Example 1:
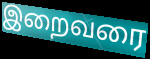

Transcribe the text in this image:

இறைவரை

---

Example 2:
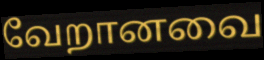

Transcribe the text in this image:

வேறானவை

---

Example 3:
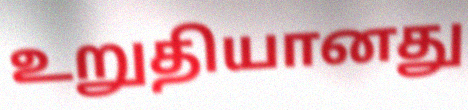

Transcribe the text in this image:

உறுதியானது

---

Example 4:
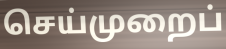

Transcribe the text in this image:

செய்முறைப்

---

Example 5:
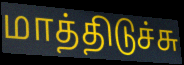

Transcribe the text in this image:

மாத்திடுச்சு